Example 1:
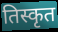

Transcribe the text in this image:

तिस्कृत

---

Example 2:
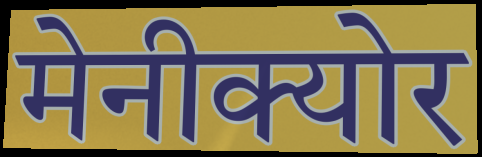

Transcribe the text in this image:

मेनीक्योर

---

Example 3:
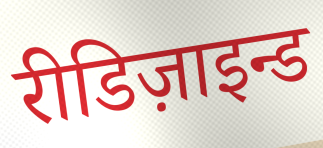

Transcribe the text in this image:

रीडिज़ाइन्ड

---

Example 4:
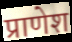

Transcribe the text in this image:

प्राणेश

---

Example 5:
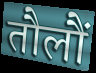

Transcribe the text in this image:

तौलौं